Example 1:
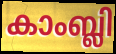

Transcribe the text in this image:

കാംബ്ലി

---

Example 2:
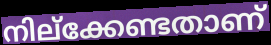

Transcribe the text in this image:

നില്ക്കേണ്ടതാണ്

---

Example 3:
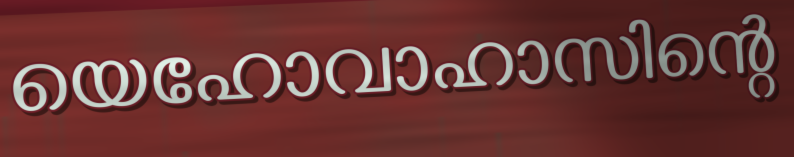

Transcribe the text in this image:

യെഹോവാഹാസിന്റെ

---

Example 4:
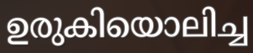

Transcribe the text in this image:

ഉരുകിയൊലിച്ച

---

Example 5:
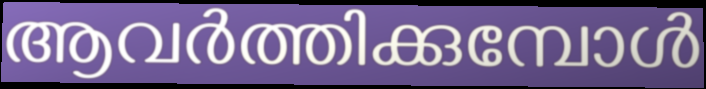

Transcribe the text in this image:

ആവർത്തിക്കുമ്പോൾ